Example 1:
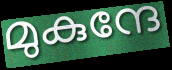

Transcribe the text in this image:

മുകുന്ദേ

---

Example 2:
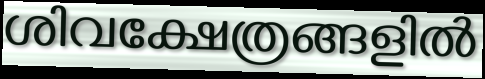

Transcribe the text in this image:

ശിവക്ഷേത്രങ്ങളിൽ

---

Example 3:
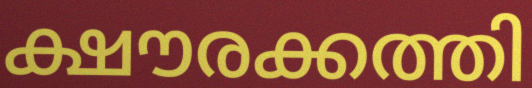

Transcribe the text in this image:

ക്ഷൗരക്കത്തി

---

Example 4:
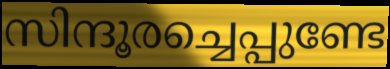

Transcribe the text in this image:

സിന്ദൂരച്ചെപ്പുണ്ടേ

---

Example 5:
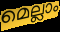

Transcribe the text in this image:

മെല്ലാം